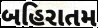
બહિરાતમ